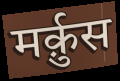
मर्क़ुस